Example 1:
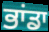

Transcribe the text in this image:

ਭਾਂਡਾ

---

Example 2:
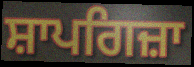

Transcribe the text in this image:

ਸ਼ਾਪਗਿਜ਼ਾ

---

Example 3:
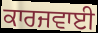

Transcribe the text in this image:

ਕਾਰਜਵਾਈ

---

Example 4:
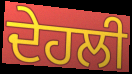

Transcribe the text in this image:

ਦੇਹਲੀ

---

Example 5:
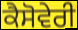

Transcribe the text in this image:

ਕੈਸੋਵੇਰੀ